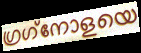
ഗ്രഗ്‌നോളയെ